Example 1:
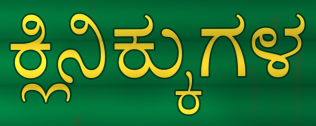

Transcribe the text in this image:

ಕ್ಲಿನಿಕ್ಕುಗಳ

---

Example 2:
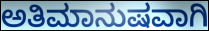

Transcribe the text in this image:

ಅತಿಮಾನುಷವಾಗಿ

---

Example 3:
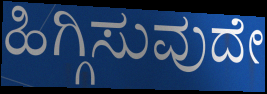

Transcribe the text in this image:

ಹಿಗ್ಗಿಸುವುದೇ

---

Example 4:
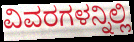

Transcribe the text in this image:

ವಿವರಗಳನ್ನಿಲ್ಲಿ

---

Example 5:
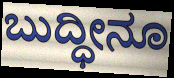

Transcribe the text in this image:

ಬುದ್ಧೀನೂ